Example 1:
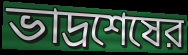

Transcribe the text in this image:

ভাদ্রশেষের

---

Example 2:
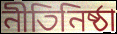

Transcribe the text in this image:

নীতিনিষ্ঠা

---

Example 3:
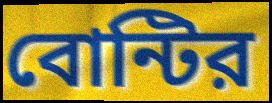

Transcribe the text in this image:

বোন্টির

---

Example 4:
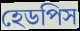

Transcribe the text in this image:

হেডপিস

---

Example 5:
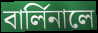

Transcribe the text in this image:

বার্লিনালে